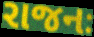
રાજનઃ